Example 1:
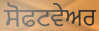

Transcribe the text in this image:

ਸੋਫਟਵੇਅਰ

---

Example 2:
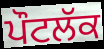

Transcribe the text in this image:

ਪੌਟਲੱਕ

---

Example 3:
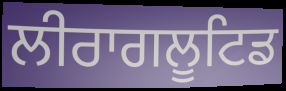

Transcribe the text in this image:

ਲੀਰਾਗਲੂਟਿਡ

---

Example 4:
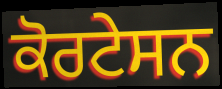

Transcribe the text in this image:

ਕੋਰਟੇਸਨ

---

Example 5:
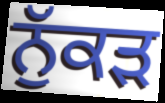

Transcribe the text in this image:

ਨੁੱਕਡ਼